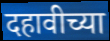
दहावीच्या